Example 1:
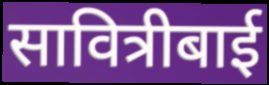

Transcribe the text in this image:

सावित्रीबाई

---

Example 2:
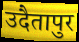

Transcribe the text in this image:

उदैतापुर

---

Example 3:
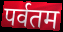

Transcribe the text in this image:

पर्वतम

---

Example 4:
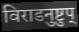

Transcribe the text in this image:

विराडनुष्टुप्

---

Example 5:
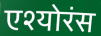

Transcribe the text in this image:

एश्योरंस